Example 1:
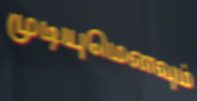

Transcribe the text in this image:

முடியுமெனவும்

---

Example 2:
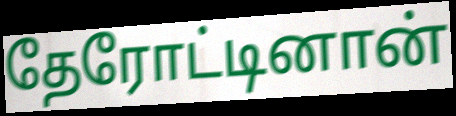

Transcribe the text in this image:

தேரோட்டினான்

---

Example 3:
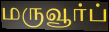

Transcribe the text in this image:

மருவூர்ப்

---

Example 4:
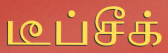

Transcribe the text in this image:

டீப்சீக்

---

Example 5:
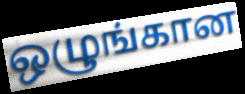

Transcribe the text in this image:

ஒழுங்கான